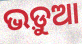
ଭଡ଼ୁଆ